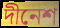
দীনেশ